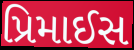
પ્રિમાઈસ